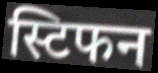
स्टिफन